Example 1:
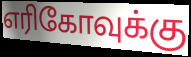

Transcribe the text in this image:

எரிகோவுக்கு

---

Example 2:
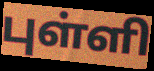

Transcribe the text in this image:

புள்ளி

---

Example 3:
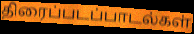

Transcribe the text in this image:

திரைப்படப்பாடல்கள்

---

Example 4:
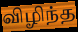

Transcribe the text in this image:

விழிந்த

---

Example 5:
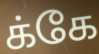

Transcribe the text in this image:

க்கே